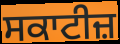
ਸਕਾਟੀਜ਼